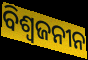
ବିଶ୍ୱଜନୀନ